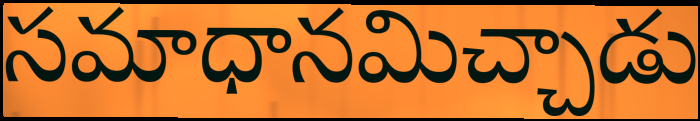
సమాధానమిచ్చాడు